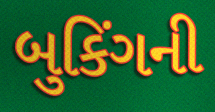
બુકિંગની